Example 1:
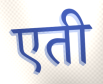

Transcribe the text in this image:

एती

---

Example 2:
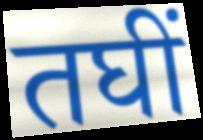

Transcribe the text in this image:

तघीं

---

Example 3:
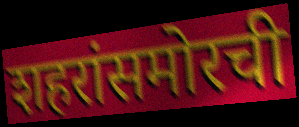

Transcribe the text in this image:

शहरांसमोरची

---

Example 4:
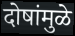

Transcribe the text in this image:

दोषांमुळे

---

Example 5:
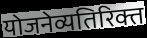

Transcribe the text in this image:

योजनेव्यतिरिक्त